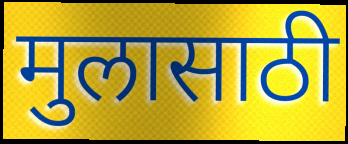
मुलासाठी